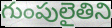
గుంపులైతిని